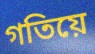
গতিয়ে